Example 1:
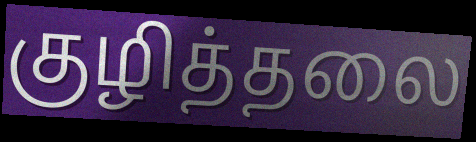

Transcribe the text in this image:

குழித்தலை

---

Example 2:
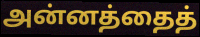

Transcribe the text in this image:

அன்னத்தைத்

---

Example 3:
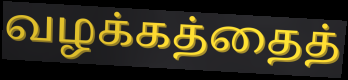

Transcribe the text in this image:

வழக்கத்தைத்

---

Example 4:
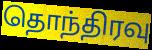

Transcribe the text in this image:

தொந்திரவு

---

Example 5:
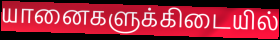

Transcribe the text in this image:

யானைகளுக்கிடையில்